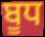
ਬੂਧ